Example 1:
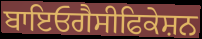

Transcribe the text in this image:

ਬਾਇਓਗੈਸੀਫਿਕੇਸ਼ਨ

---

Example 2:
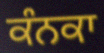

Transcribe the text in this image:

ਕੰਨਕਾ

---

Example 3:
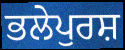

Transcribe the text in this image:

ਭਲੇਪੁਰਸ਼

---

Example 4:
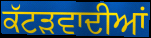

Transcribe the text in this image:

ਕੱਟੜਵਾਦੀਆਂ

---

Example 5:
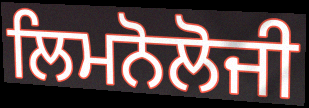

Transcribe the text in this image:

ਲਿਮਨੋਲੋਜੀ